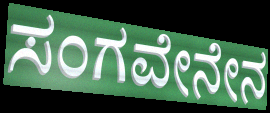
ಸಂಗವೇನೇನ